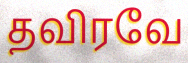
தவிரவே